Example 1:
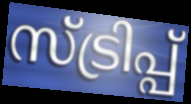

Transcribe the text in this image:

സ്ട്രിപ്പ്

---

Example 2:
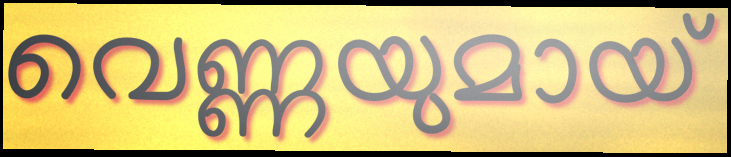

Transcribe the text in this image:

വെണ്ണയുമായ്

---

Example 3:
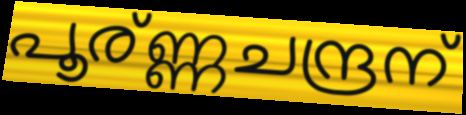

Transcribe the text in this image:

പൂര്ണ്ണചന്ദ്രന്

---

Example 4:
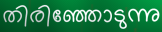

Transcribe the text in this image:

തിരിഞ്ഞോടുന്നു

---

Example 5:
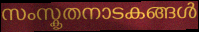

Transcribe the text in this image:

സംസ്കൃതനാടകങ്ങൾ